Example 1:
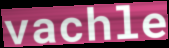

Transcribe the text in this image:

vachle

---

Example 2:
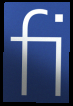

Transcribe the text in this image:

fi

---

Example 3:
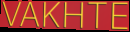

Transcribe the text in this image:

VAKHTE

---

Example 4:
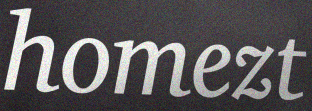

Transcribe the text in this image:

homezt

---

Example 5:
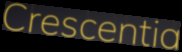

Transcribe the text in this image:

Crescentia